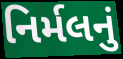
નિર્મલનું